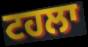
ਟਹਲਾ